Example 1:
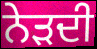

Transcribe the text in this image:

ਨੇੜਦੀ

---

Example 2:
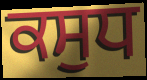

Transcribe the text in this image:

ਕਸੁਧ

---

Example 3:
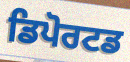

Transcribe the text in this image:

ਡਿਪੋਰਟਡ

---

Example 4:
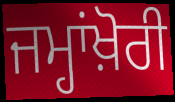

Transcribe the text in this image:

ਜਮ੍ਹਾਂਖ਼ੋਰੀ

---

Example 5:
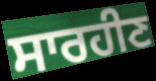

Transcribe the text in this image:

ਸਾਰਹੀਣ